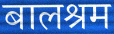
बालश्रम